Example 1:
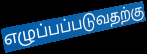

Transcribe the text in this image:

எழுப்பப்படுவதற்கு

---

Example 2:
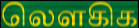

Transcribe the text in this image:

லௌகிக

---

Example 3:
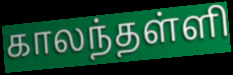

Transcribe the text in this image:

காலந்தள்ளி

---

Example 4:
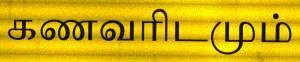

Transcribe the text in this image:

கணவரிடமும்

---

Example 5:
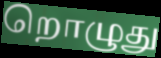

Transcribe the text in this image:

றொழுது